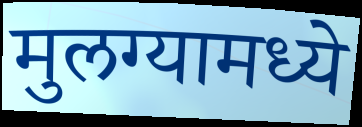
मुलग्यामध्ये